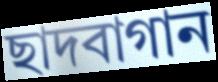
ছাদবাগান